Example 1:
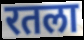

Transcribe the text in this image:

रतला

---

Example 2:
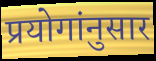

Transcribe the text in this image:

प्रयोगांनुसार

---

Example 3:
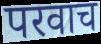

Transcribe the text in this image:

परवाच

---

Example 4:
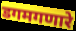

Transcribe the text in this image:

डगमगणारे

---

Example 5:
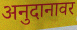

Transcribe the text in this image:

अनुदानावर